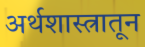
अर्थशास्त्रातून